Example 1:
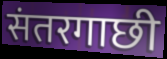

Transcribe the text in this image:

संतरगाछी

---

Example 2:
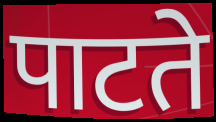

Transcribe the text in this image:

पाटते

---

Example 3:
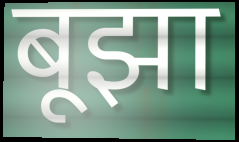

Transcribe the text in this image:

बूझा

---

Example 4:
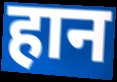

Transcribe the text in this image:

हान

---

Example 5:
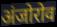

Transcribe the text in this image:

अंजोरोव